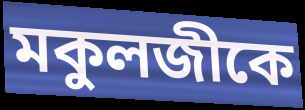
মকুলজীকে